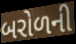
બરોળની